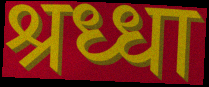
श्रध्धा